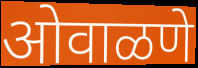
ओवाळणे